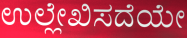
ಉಲ್ಲೇಖಿಸದೆಯೇ